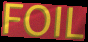
FOIL